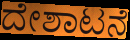
ದೇಶಾಟನೆ